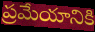
ప్రమేయానికి